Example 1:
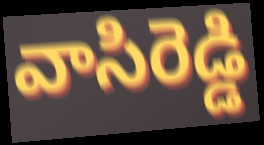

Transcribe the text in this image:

వాసిరెడ్డి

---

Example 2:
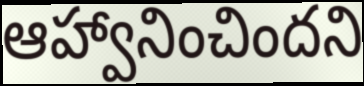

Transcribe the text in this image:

ఆహ్వానించిందని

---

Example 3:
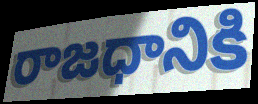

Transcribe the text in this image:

రాజధానికి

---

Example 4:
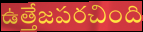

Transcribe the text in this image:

ఉత్తేజపరచింది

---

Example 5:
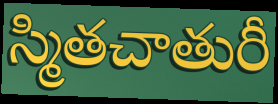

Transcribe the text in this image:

స్మితచాతురీ